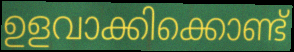
ഉളവാക്കിക്കൊണ്ട്